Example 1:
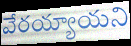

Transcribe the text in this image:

వేరయ్యాయని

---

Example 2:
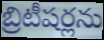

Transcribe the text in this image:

బ్రిటీషర్లను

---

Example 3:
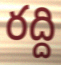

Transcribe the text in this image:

రద్ది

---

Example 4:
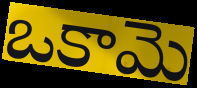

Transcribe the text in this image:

ఒకామె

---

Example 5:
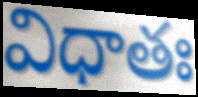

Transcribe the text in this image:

విధాతః